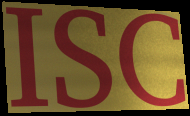
ISC